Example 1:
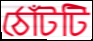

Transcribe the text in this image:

ঠোঁটটি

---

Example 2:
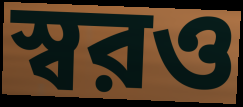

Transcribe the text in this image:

স্বরও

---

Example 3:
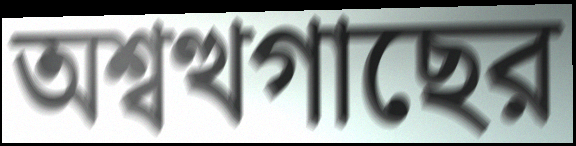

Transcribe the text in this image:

অশ্বত্থগাছের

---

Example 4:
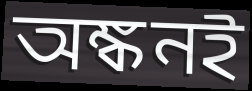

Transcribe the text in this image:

অঙ্কনই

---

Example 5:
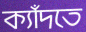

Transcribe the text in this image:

ক্যাঁদতে